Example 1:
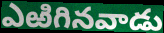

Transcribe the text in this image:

ఎఱిగినవాడు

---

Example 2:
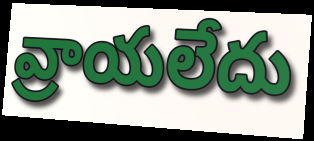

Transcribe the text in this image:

వ్రాయలేదు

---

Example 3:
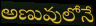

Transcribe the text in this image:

అణువులోనే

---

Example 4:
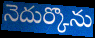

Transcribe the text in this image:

నెదుర్కొను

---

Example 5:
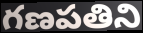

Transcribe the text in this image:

గణపతిని